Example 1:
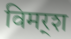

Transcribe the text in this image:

विमर्श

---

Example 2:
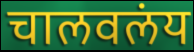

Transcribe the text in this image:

चालवलंय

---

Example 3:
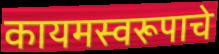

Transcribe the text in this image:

कायमस्वरूपाचे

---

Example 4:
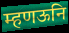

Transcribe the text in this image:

म्हणऊनि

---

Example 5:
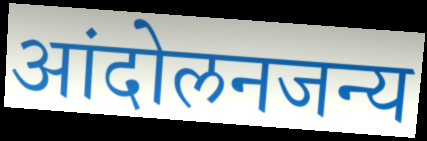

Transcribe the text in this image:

आंदोलनजन्य